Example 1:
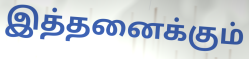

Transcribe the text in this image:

இத்தனைக்கும்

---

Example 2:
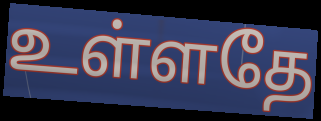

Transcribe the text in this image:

உள்ளதே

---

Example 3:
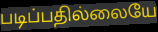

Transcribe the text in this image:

படிப்பதில்லையே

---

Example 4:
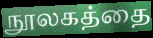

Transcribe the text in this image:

நூலகத்தை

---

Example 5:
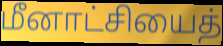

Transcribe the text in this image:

மீனாட்சியைத்